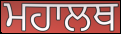
ਮਹਾਲਥ